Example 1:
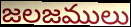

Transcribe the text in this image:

జలజములు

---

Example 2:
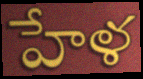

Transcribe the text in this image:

హేళ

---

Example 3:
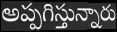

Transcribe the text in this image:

అప్పగిస్తున్నారు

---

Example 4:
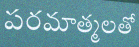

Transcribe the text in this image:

పరమాత్మలతో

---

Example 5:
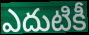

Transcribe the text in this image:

ఎదుటికీ